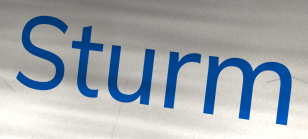
Sturm